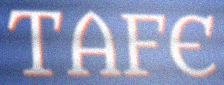
TAFE